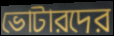
ভোটারদের